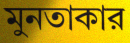
মুনতাকার